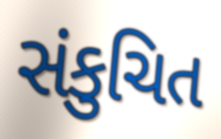
સંકુચિત